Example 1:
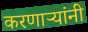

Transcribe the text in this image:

करणाऱ्यांनी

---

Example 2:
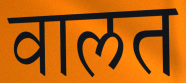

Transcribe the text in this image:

वालत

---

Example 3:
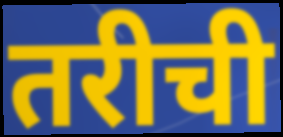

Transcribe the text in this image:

तरीची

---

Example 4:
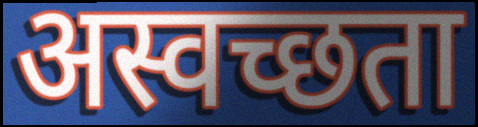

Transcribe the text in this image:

अस्वच्छता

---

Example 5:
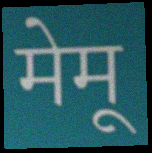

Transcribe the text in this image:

मेमू